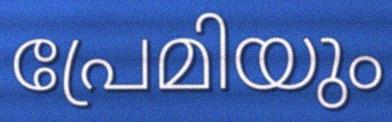
പ്രേമിയും